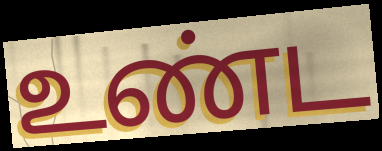
உண்ட